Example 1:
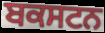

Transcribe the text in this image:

ਬਕਸਟਨ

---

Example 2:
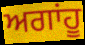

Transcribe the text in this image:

ਅਗਾਂਹੂ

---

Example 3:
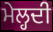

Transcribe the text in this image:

ਮੇਲ੍ਹਦੀ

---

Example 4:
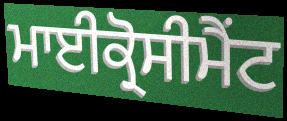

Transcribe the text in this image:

ਮਾਈਕ੍ਰੋਸੀਮੈਂਟ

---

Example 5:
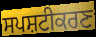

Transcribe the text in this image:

ਸਪਸ਼ਟੀਕਰਣ